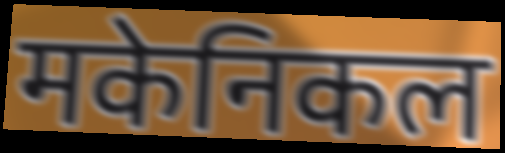
मकेनिकल